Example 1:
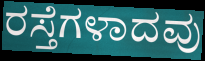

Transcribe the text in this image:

ರಸ್ತೆಗಳಾದವು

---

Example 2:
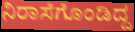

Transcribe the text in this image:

ನಿರಾಸೆಗೊಂಡಿದ್ದ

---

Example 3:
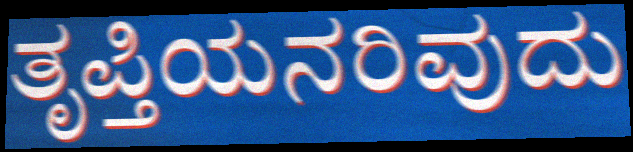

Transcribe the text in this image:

ತೃಪ್ತಿಯನರಿವುದು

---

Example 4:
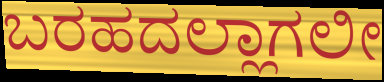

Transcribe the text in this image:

ಬರಹದಲ್ಲಾಗಲೀ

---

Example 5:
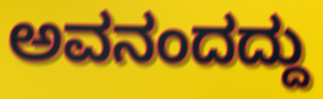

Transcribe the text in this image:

ಅವನಂದದ್ದು